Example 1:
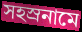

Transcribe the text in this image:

সহস্ৰনামে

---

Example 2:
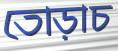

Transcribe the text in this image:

তোড়াচ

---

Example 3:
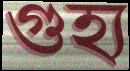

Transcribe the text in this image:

গুহ্য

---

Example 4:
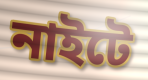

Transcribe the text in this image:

নাইটে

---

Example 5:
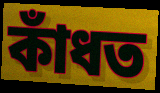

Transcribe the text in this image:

কাঁধত